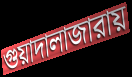
গুয়াদালাজারায়